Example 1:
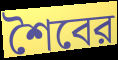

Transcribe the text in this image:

শৈবের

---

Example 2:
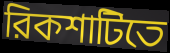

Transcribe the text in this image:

রিকশাটিতে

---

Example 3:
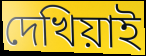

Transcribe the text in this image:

দেখিয়াই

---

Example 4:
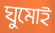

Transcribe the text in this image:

ঘুমোই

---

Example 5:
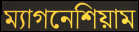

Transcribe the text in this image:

ম্যাগনেশিয়াম